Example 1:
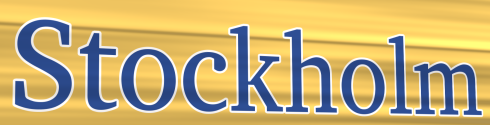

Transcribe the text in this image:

Stockholm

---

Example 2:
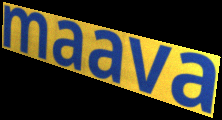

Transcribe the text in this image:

maava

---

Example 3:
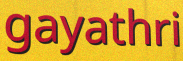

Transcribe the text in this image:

gayathri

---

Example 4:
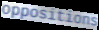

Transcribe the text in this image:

oppositions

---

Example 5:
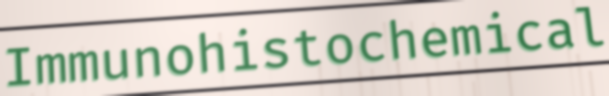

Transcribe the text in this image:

Immunohistochemical